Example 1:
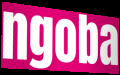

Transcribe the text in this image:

ngoba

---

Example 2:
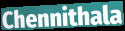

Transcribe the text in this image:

Chennithala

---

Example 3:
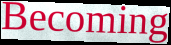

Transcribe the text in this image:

Becoming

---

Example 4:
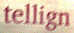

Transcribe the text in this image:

tellign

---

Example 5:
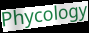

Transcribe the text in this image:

Phycology